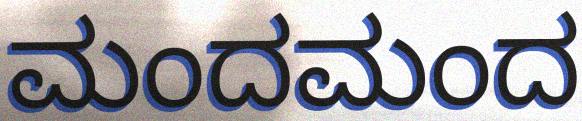
ಮಂದಮಂದ